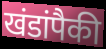
खंडांपैकी